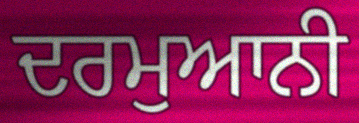
ਦਰਮੁਆਨੀ